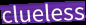
clueless